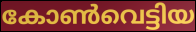
കോൺവെട്ടിയ